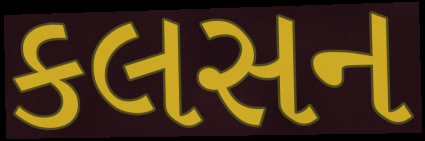
કલસન